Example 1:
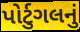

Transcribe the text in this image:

પોર્ટુગલનું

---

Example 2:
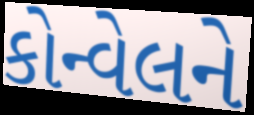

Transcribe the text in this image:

કોન્વેલને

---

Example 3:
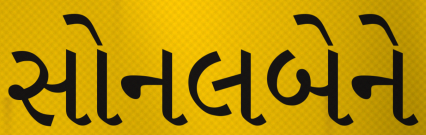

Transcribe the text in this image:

સોનલબેને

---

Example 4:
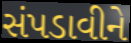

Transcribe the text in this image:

સંપડાવીને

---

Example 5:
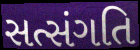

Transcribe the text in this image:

સત્સંગતિ